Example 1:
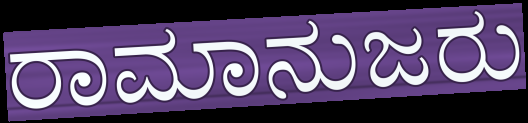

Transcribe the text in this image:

ರಾಮಾನುಜರು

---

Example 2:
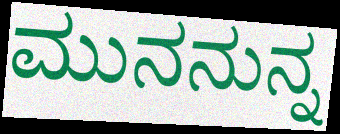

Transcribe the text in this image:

ಮುನನುನ್ನ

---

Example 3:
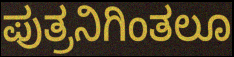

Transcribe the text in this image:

ಪುತ್ರನಿಗಿಂತಲೂ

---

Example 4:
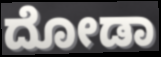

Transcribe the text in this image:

ದೋಡಾ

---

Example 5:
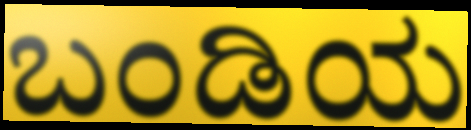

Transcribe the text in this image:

ಬಂಡಿಯ